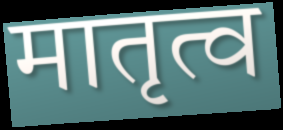
मातृत्व